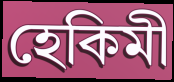
হেকিমী